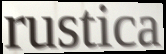
rustica